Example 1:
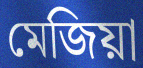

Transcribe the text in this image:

মেজিয়া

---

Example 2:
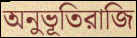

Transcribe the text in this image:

অনুভূতিরাজি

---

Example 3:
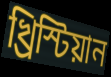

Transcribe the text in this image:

খ্রিস্টিয়ান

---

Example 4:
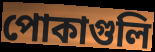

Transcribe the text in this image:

পোকাগুলি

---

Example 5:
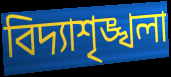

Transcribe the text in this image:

বিদ্যাশৃঙ্খলা